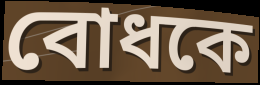
বোধকে